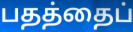
பதத்தைப்